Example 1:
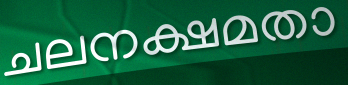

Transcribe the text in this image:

ചലനക്ഷമതാ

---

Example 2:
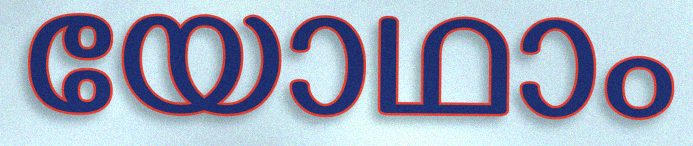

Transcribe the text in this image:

യോഥാം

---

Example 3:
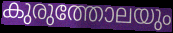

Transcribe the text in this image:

കുരുത്തോലയും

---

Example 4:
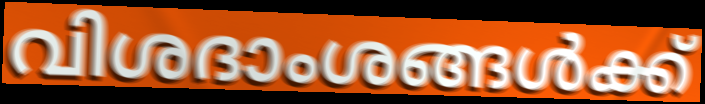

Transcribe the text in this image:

വിശദാംശങ്ങൾക്ക്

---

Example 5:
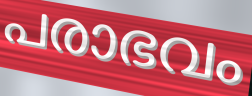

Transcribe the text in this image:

പരാഭവം